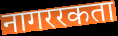
नागररकता